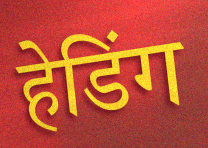
हेडिंग